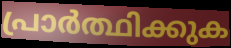
പ്രാർത്ഥിക്കുക